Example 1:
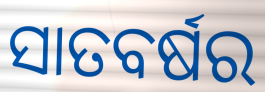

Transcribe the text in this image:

ସାତବର୍ଷର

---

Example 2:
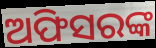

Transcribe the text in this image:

ଅଫିସରଙ୍କ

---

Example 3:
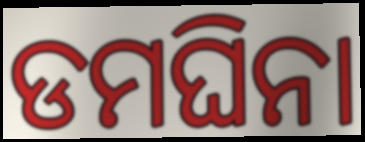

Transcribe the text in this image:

ଡମଘିନା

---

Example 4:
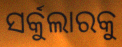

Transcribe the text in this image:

ସର୍କୁଲାରକୁ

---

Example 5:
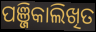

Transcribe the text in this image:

ପଞ୍ଜିକାଲିଖିତ